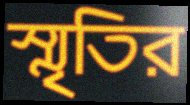
স্মৃতির